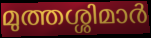
മുത്തശ്ശിമാർ